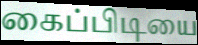
கைப்பிடியை